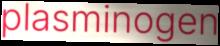
plasminogen